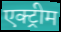
एक्ट्रीम